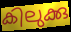
കിലുക്കു